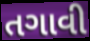
તગાવી